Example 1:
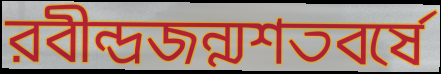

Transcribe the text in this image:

রবীন্দ্রজন্মশতবর্ষে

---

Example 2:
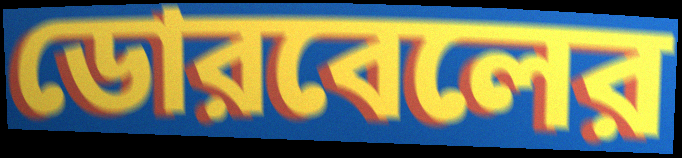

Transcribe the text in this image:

ডোরবেলের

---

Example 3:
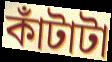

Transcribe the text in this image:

কাঁটাটা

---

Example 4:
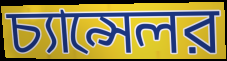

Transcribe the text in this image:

চ্যান্সেলর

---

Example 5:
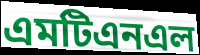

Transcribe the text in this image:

এমটিএনএল